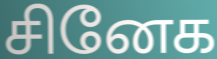
சினேக